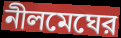
নীলমেঘের